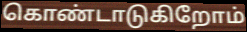
கொண்டாடுகிறோம்